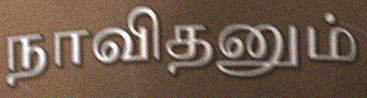
நாவிதனும்